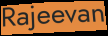
Rajeevan